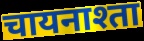
चायनाश्ता